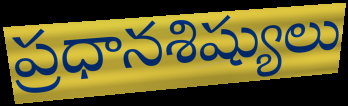
ప్రధానశిష్యులు